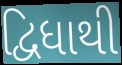
દ્વિધાથી